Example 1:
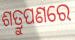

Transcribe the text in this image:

ଶତ୍ରୁପଣରେ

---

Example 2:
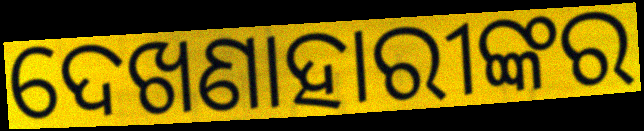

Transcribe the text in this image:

ଦେଖଣାହାରୀଙ୍କର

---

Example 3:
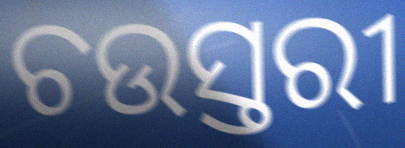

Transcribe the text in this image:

ଚଉସ୍ତରୀ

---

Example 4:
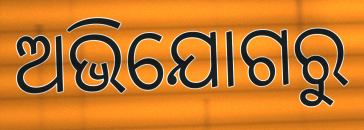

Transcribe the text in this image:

ଅଭିଯୋଗରୁ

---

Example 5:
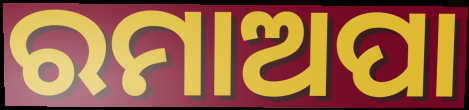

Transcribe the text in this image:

ରମାଅପା